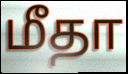
மீதா